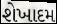
શેખાદમ